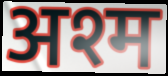
अश्म